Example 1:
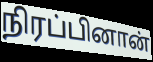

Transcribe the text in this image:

நிரப்பினான்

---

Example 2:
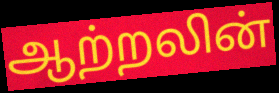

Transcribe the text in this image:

ஆற்றலின்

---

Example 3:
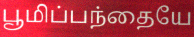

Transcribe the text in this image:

பூமிப்பந்தையே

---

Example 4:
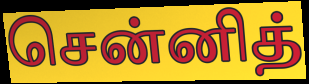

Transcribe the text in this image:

சென்னித்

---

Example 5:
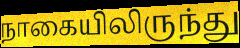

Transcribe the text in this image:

நாகையிலிருந்து